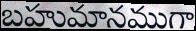
బహుమానముగా